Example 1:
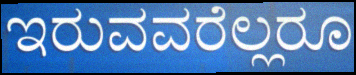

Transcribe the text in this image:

ಇರುವವರೆಲ್ಲರೂ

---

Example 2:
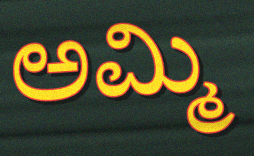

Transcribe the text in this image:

ಅಮ್ಮಿ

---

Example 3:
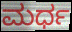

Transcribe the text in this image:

ಮರ್ಧ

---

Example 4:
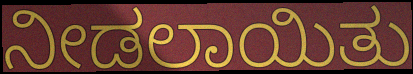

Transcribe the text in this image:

ನೀಡಲಾಯಿತು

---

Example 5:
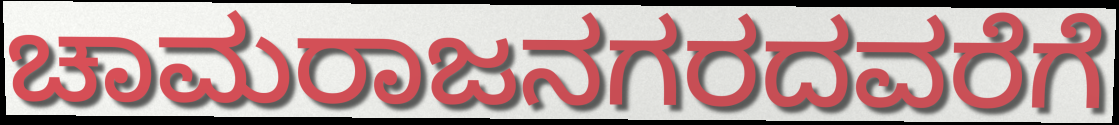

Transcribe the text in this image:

ಚಾಮರಾಜನಗರದವರೆಗೆ